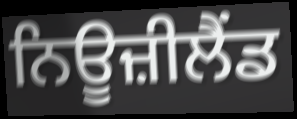
ਨਿਊਜ਼ੀਲੈਂਡ